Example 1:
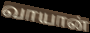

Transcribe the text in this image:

வாயான்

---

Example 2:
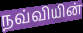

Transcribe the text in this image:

நவ்வியின்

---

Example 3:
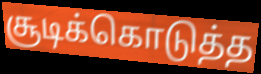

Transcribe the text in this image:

சூடிக்கொடுத்த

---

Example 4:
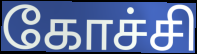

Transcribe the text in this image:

கோச்சி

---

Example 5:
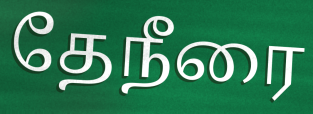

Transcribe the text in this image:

தேநீரை